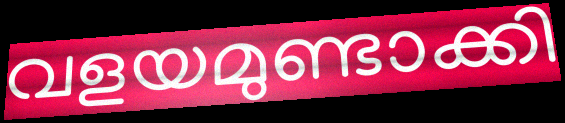
വളയമുണ്ടാക്കി